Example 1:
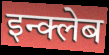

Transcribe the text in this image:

इन्क्लेब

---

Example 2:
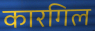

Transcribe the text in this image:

कारगिल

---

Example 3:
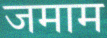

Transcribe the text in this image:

जमाम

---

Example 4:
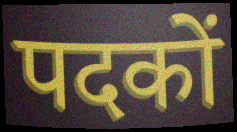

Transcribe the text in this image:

पदकों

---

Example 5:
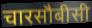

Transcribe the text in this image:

चारसौबीसी